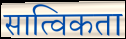
सात्विकता